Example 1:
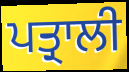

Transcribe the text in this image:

ਪਤ੍ਰਾਲੀ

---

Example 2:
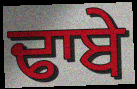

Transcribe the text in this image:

ਢਾਬੇ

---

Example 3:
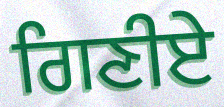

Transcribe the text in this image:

ਗਿਣੀਏ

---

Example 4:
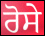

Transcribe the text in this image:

ਰੋਸੇ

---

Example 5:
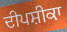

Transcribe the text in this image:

ਦੀਪਸ਼ੀਕਾ